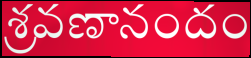
శ్రవణానందం